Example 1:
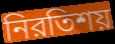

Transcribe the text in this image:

নিরতিশয়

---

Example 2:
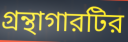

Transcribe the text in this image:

গ্রন্থাগারটির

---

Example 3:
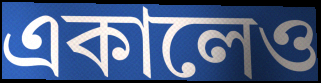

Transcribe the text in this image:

একালেও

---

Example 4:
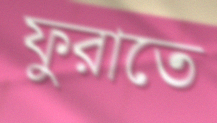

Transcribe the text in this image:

ফুরাতে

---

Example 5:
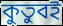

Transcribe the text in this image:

কুতুবই